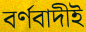
বর্ণবাদীই